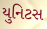
યુનિટસ